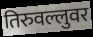
तिरुवल्लुवर